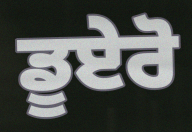
ਡੂਏਰੋ